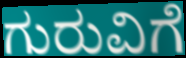
ಗುರುವಿಗೆ